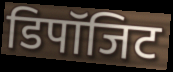
डिपॉजिट